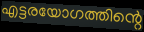
എട്ടരയോഗത്തിന്റെ